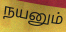
நயனும்